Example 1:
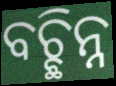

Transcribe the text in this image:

ବଚ୍ଛିନ୍ନ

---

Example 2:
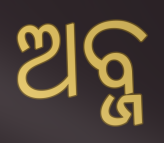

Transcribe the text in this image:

ଅବ୍ଜ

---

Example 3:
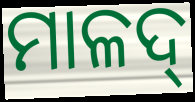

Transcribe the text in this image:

ମାଳଦ୍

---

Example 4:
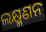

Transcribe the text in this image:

ଲକ୍ଷ୍ମଣନ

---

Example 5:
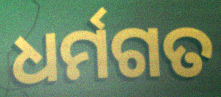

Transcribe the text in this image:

ଧର୍ମଗତ